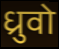
ध्रुवो